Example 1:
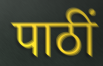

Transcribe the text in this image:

पाठीं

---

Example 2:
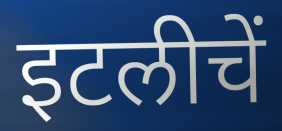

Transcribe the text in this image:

इटलीचें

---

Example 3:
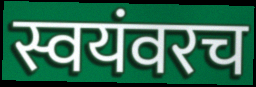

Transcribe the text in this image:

स्वयंवरच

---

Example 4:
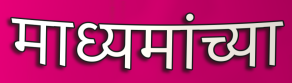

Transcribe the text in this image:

माध्यमांच्या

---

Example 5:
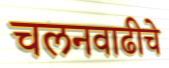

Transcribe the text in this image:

चलनवाढीचे